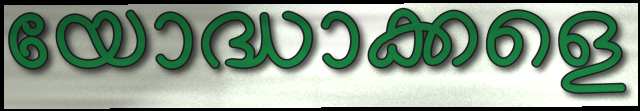
യോദ്ധാക്കളെ